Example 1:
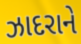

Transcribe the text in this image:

ઝાદરાને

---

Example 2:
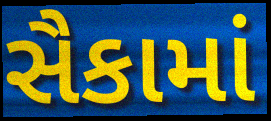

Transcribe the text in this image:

સૈકામાં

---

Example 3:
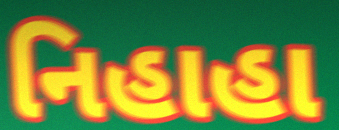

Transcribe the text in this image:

નિહાહા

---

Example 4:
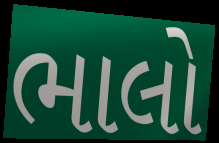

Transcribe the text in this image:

ભાલો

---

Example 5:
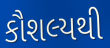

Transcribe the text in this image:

કૌશલ્યથી